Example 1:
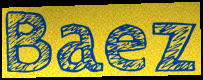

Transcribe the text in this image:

Baez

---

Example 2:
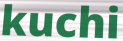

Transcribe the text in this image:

kuchi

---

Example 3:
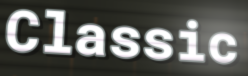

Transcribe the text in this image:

Classic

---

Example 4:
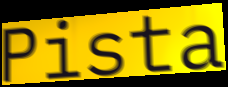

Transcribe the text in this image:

Pista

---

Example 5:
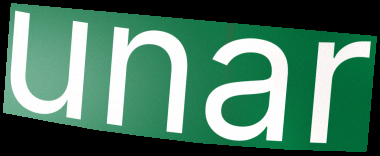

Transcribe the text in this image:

unar